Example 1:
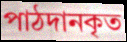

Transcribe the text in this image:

পাঠদানকৃত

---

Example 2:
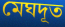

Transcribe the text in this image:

মেঘদূত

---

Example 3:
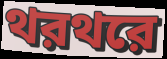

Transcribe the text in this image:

থরথরে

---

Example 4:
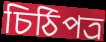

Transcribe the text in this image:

চিঠিপত্র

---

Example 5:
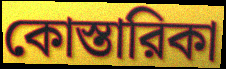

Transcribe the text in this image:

কোস্তারিকা